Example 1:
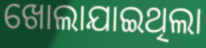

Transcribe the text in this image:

ଖୋଲାଯାଇଥିଲା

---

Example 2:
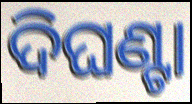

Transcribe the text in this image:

ଦିଘଣ୍ଟା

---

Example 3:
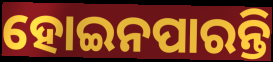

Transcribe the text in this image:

ହୋଇନପାରନ୍ତି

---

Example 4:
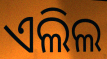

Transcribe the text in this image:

ଏଲିଲ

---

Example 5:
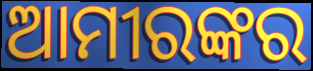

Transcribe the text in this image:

ଆମୀରଙ୍କର